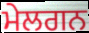
ਮੇਲਗਨ